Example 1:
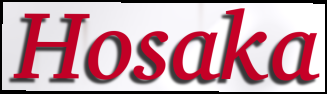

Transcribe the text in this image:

Hosaka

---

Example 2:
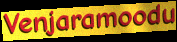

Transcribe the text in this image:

Venjaramoodu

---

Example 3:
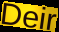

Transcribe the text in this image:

Deir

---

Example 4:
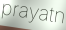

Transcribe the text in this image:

prayatn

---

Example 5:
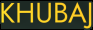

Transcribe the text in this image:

KHUBAJ